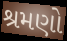
શ્રમણો